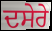
ਦਸੇਰੇ